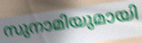
സുനാമിയുമായി